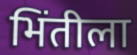
भिंतीला